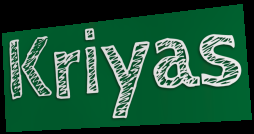
Kriyas